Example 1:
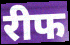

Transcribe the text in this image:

रीफ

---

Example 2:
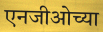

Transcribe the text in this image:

एनजीओच्या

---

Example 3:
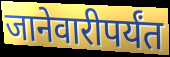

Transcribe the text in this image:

जानेवारीपर्यंत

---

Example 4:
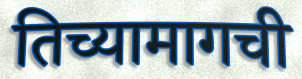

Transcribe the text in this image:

तिच्यामागची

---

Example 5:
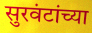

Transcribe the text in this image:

सुरवंटांच्या